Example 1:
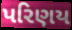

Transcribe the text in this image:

પરિણય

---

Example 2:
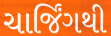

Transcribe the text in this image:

ચાર્જિંગથી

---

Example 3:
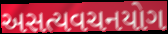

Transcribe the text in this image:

અસત્યવચનયોગ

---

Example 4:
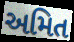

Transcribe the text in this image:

અમિત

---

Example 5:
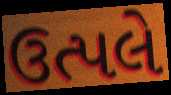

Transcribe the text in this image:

ઉત્પલે